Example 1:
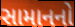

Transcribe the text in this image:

સામાનનો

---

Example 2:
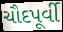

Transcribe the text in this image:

ચૌદપૂર્વી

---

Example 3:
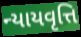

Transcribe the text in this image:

ન્યાયવૃત્તિ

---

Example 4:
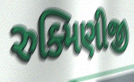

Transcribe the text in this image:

રુક્મિણીજી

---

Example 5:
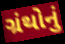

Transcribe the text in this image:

ગ્રંથોનું